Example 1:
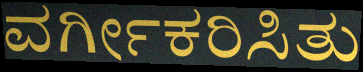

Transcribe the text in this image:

ವರ್ಗೀಕರಿಸಿತು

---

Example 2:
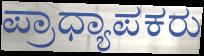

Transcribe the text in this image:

ಪ್ರಾಧ್ಯಾಪಕರು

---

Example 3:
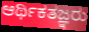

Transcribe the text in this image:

ಆರ್ಥಿಕತಜ್ಞರು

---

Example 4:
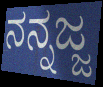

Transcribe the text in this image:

ನನ್ನಜ್ಜ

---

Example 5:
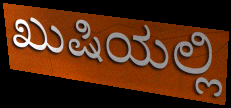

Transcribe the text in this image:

ಖುಷಿಯಲ್ಲಿ